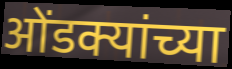
ओंडक्यांच्या